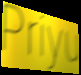
Priyu